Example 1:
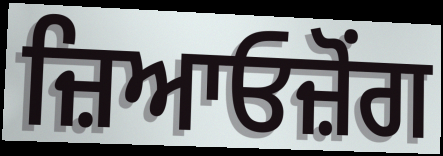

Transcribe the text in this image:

ਜ਼ਿਆਓਜ਼ੋਂਗ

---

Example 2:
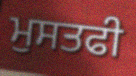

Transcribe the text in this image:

ਮੁਸਤਫੀ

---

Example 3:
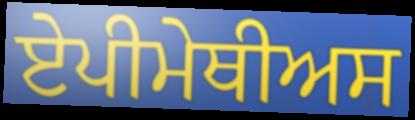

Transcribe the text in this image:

ਏਪੀਮੇਥੀਅਸ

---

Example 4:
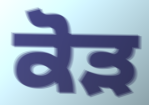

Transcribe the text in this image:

ਕੋੜ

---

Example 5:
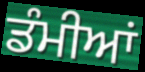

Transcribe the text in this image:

ਡੰਮੀਆਂ